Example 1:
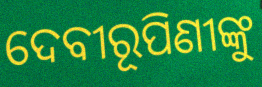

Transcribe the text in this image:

ଦେବୀରୂପିଣୀଙ୍କୁ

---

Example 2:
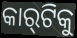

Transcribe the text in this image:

କାର୍‍ଟିକୁ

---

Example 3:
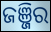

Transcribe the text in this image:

ଜଞ୍ଜିର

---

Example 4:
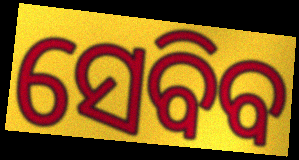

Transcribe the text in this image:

ସେବିବ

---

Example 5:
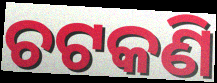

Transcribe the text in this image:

ଚଟକଣି